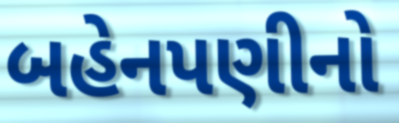
બહેનપણીનો